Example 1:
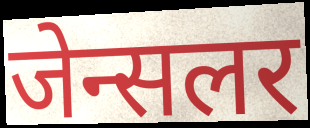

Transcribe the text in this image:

जेन्सलर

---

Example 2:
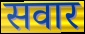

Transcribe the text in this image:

सवार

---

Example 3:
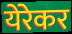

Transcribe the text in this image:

येरेकर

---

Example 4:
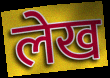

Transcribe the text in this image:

लेख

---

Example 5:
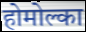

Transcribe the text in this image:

होमोल्का